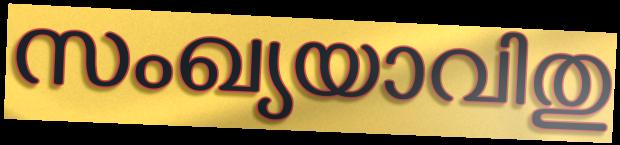
സംഖ്യയാവിതു